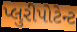
પ્લુરીપોટેન્ટ